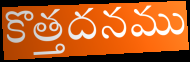
కొత్తదనము